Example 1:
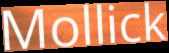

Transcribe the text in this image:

Mollick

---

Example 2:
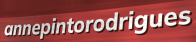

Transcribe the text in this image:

annepintorodrigues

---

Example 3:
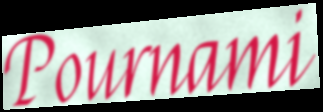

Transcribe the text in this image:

Pournami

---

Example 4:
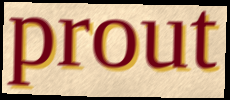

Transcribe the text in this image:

prout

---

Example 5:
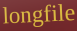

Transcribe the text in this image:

longfile